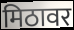
मिठावर